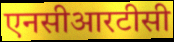
एनसीआरटीसी